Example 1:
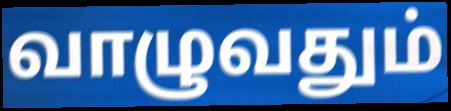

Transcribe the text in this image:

வாழுவதும்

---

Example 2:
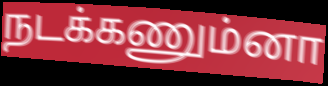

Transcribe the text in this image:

நடக்கணும்னா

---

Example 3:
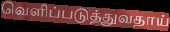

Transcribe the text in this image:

வெளிப்படுத்துவதாய்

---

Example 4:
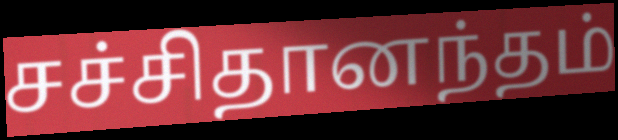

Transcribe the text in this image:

சச்சிதானந்தம்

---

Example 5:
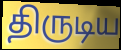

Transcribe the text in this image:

திருடிய